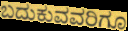
ಬದುಕುವವರಿಗೂ